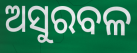
ଅସୁରବଳ